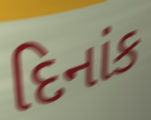
દિનાંક